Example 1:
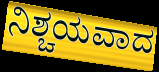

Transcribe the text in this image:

ನಿಶ್ಚಯವಾದ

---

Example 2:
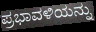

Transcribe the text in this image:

ಪ್ರಭಾವಳಿಯನ್ನು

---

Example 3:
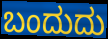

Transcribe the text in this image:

ಬಂದುದು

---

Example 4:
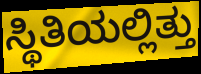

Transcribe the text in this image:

ಸ್ಥಿತಿಯಲ್ಲಿತ್ತು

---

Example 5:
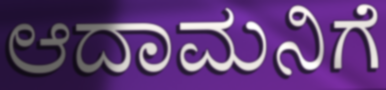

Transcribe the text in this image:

ಆದಾಮನಿಗೆ